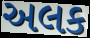
અલક